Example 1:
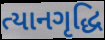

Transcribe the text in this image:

ત્યાનગૃદ્ધિ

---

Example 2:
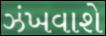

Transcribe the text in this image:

ઝંખવાશે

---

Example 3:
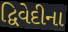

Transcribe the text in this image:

દ્વિવેદીના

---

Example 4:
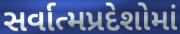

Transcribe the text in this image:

સર્વાત્મપ્રદેશોમાં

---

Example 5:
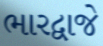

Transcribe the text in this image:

ભારદ્વાજે